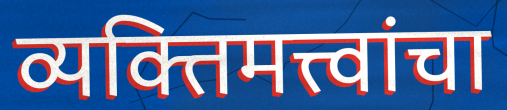
व्यक्तिमत्त्वांचा